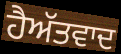
ਹੈਅੱਤਵਾਦ